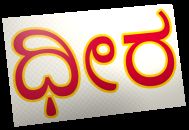
ಧೀರ